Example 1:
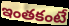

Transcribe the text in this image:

ఇంతకంటే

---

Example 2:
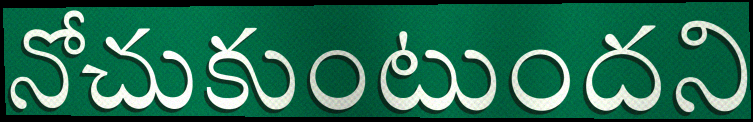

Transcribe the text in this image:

నోచుకుంటుందని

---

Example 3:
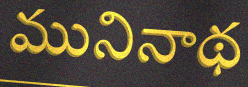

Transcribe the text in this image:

మునినాథ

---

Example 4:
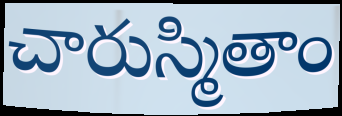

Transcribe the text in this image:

చారుస్మితాం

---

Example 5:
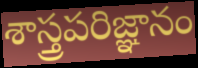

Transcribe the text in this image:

శాస్త్రపరిజ్ఞానం